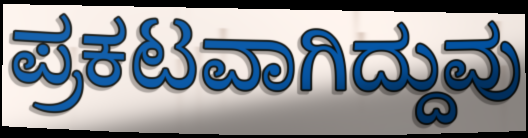
ಪ್ರಕಟವಾಗಿದ್ದುವು